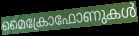
മൈക്രോഫോണുകൾ